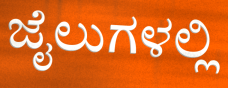
ಜೈಲುಗಳಲ್ಲಿ